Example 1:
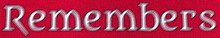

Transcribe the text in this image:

Remembers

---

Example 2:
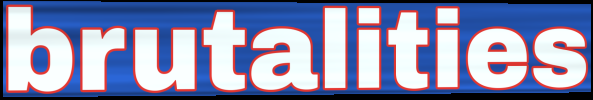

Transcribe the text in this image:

brutalities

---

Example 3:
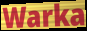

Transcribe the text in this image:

Warka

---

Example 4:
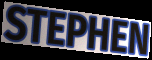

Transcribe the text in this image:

STEPHEN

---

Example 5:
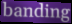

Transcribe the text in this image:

banding